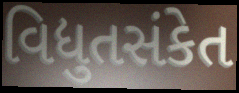
વિદ્યુતસંકેત